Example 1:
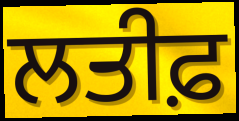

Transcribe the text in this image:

ਲਤੀਫ਼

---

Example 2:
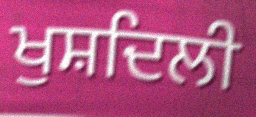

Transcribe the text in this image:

ਖੁਸ਼ਦਿਲੀ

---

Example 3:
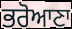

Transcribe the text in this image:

ਭਰੋਆਣਾ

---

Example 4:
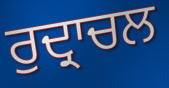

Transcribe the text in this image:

ਰੁਦ੍ਰਾਚਲ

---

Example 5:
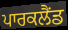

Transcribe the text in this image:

ਪਾਰਕਲੈਂਡ